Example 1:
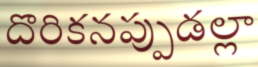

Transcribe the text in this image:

దొరికనప్పుడల్లా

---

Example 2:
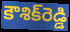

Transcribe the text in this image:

కౌశిక్‌రెడ్డి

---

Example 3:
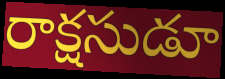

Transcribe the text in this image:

రాక్షసుడూ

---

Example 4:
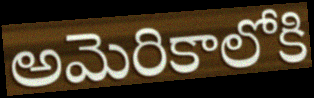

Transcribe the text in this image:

అమెరికాలోకి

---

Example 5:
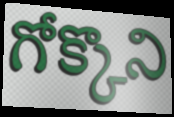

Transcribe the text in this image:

గోక్కొని